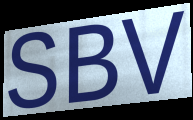
SBV